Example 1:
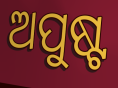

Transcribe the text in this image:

ଅପୁଷ୍ଟ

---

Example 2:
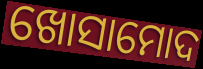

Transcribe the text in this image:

ଖୋସାମୋଦ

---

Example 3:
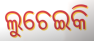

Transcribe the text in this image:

ଲୁଚେଇକି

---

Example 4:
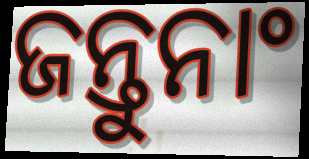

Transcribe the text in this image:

ଜନ୍ତୁନାଂ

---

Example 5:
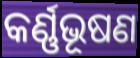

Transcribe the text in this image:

କର୍ଣ୍ଣଭୂଷଣ